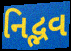
નિદ્ભવ